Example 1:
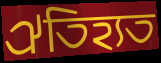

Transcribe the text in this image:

ঐতিহ্যত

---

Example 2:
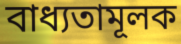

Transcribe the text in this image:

বাধ্যতামূলক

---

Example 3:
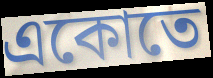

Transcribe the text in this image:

একোতে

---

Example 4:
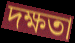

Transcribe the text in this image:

দক্ষতা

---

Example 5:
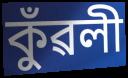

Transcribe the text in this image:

কুঁৱলী